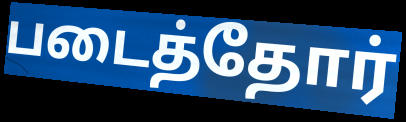
படைத்தோர்